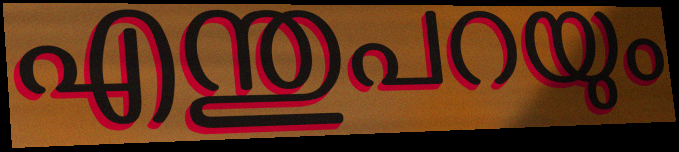
എന്തുപറയും